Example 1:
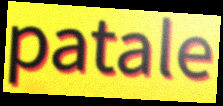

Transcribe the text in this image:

patale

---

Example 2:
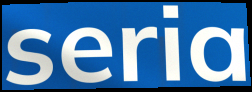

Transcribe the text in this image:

seria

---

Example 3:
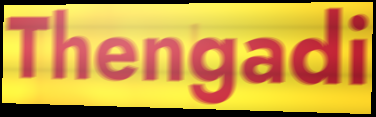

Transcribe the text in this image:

Thengadi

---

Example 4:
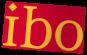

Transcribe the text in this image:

ibo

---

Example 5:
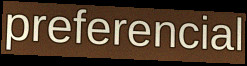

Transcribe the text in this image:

preferencial